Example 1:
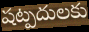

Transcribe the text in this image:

షట్పదులకు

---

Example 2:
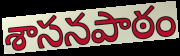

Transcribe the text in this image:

శాసనపాఠం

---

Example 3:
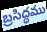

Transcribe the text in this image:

బ్రసిద్ధము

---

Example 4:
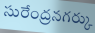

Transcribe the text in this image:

సురేంద్రనగర్కు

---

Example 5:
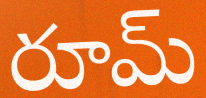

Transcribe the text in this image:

రూమ్